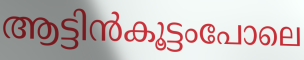
ആട്ടിൻകൂട്ടംപോലെ